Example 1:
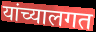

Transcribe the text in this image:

यांच्यालगत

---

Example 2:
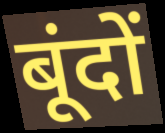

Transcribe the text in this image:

बूंदों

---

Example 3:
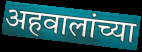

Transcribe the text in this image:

अहवालांच्या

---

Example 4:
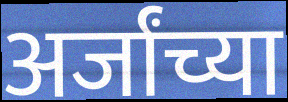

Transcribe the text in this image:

अर्जांच्या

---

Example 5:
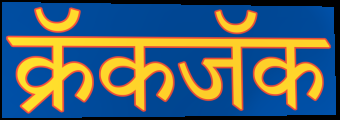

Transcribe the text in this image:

क्रॅकजॅक